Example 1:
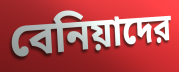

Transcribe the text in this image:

বেনিয়াদের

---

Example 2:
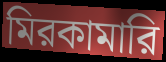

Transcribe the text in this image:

মিরকামারি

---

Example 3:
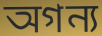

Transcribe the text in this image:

অগন্য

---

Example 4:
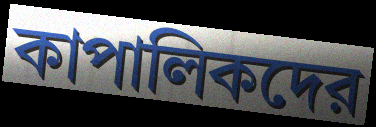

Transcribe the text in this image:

কাপালিকদের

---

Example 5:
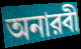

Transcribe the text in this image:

অনারবী